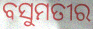
ବସୁମତୀର